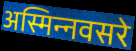
अस्मिन्नवसरे